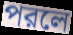
পরলে